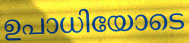
ഉപാധിയോടെ